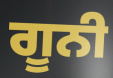
ਗੂਨੀ